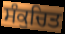
ਸੰਕੁਚਿਤ